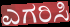
ಎಗರಿಸಿ